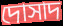
দোসাদ